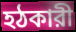
হঠকারী